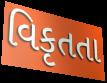
વિકૃતતા